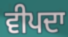
ਵੀਪਦਾ